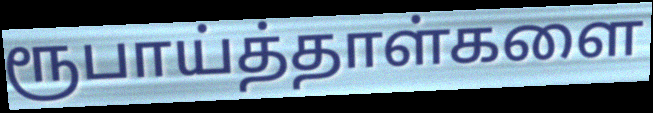
ரூபாய்த்தாள்களை